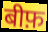
बीफ़